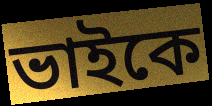
ভাইকে